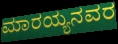
ಮಾರಯ್ಯನವರ